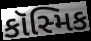
કૉસ્મિક